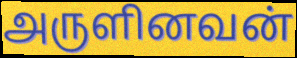
அருளினவன்